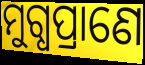
ମୁଗ୍ଧପ୍ରାଣେ